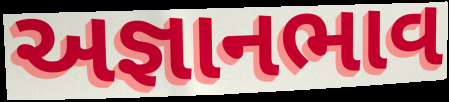
અજ્ઞાનભાવ